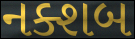
નક્શબ